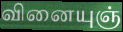
வினையுஞ்